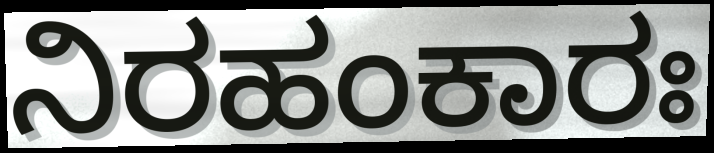
ನಿರಹಂಕಾರಃ